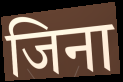
जिना